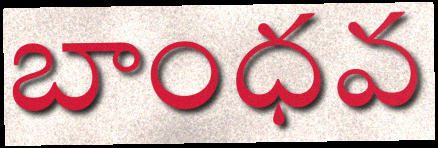
బాంధవ